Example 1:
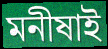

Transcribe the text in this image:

মনীষাই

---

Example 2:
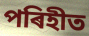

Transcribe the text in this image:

পৰিহীত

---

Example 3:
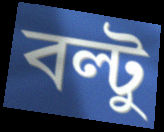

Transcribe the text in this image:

বল্টু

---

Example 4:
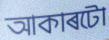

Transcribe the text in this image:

আকাৰটো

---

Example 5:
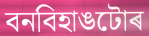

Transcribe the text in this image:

বনবিহাঙটোৰ